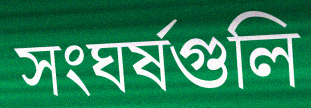
সংঘর্ষগুলি